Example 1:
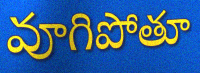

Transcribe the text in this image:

వూగిపోతూ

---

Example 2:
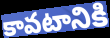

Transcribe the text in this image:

కావటానికి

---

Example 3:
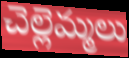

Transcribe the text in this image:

చెల్లెమ్మలు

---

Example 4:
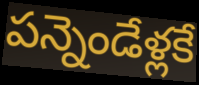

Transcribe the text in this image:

పన్నెండేళ్లకే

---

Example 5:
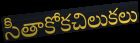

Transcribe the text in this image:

సీతాకోకచిలుకలు